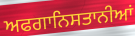
ਅਫਗਾਨਿਸਤਾਨੀਆਂ